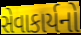
સેવાકાર્યનો